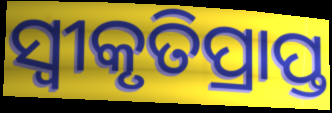
ସ୍ୱୀକୃତିପ୍ରାପ୍ତ